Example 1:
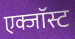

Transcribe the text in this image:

एक्जॉस्ट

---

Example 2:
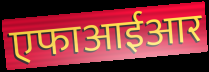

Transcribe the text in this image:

एफाआईआर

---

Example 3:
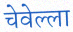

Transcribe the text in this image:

चेवेल्ला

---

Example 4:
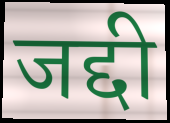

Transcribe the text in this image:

जद्दी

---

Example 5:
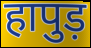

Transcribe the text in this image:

हापुड़